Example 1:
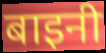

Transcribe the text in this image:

बाइनी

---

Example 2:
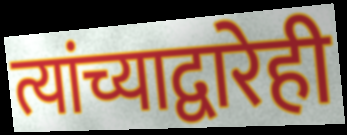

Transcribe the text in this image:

त्यांच्याद्वारेही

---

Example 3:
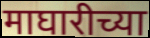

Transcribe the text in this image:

माघारीच्या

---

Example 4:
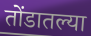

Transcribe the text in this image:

तोंडातल्या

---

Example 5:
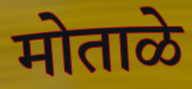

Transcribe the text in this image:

मोताळे